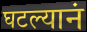
घटल्यानं